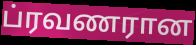
ப்ரவணரான